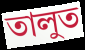
তালুত